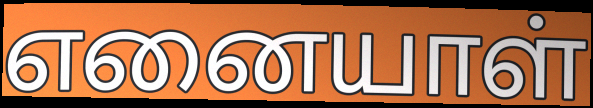
எனையாள்